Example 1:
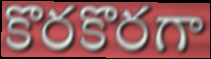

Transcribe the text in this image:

కొరకొరగా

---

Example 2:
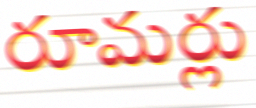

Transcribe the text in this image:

రూమర్లు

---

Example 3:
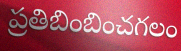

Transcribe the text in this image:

ప్రతిబింబించగలం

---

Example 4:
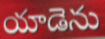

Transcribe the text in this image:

యాడెను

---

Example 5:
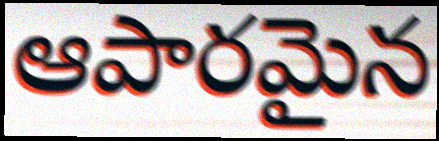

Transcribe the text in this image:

ఆపారమైన